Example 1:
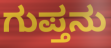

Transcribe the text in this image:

ಗುಪ್ತನು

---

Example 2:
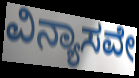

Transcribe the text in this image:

ವಿನ್ಯಾಸವೇ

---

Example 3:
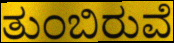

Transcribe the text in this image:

ತುಂಬಿರುವೆ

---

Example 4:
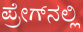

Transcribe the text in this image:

ಪ್ರೇಗ್‌ನಲ್ಲಿ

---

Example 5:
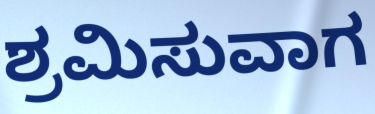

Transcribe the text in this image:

ಶ್ರಮಿಸುವಾಗ